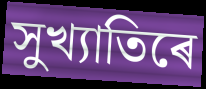
সুখ্যাতিৰে